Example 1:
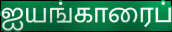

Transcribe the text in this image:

ஐயங்காரைப்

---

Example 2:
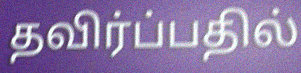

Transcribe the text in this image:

தவிர்ப்பதில்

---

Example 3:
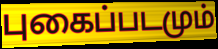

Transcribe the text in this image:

புகைப்படமும்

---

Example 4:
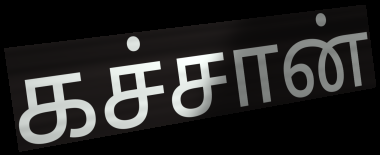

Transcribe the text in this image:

கச்சான்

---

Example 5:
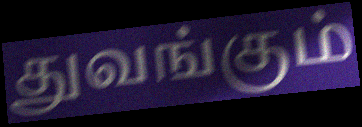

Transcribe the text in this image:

துவங்கும்